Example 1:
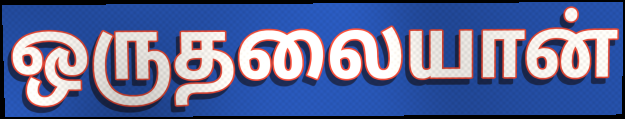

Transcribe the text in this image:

ஒருதலையான்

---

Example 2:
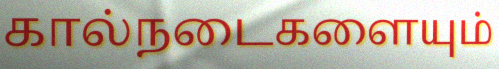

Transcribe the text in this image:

கால்நடைகளையும்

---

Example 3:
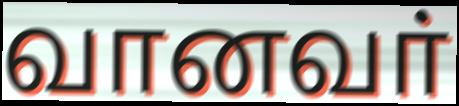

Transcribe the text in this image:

வானவர்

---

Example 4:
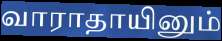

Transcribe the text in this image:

வாராதாயினும்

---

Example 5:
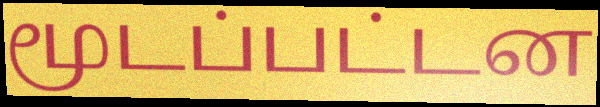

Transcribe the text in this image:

மூடப்பட்டன